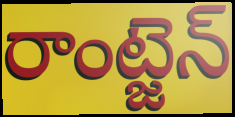
రాంట్జెన్